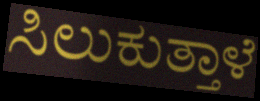
ಸಿಲುಕುತ್ತಾಳೆ